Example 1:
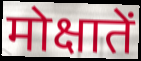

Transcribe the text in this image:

मोक्षातें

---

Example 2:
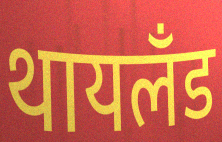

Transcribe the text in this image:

थायलँड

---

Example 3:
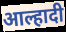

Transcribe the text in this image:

आल्हादी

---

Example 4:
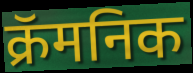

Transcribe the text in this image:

क्रॅमनिक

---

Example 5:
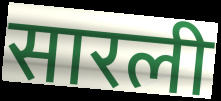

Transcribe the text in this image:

सारली